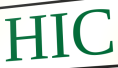
HIC